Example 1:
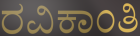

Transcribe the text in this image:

ರವಿಕಾಂತಿ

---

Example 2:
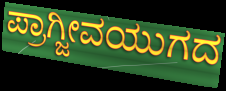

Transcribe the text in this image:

ಪ್ರಾಗ್ಜೀವಯುಗದ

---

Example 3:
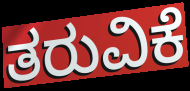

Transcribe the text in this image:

ತರುವಿಕೆ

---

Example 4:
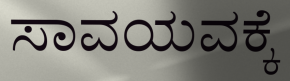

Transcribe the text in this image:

ಸಾವಯವಕ್ಕೆ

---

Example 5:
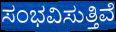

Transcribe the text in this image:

ಸಂಭವಿಸುತ್ತಿವೆ